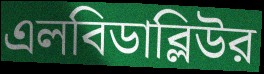
এলবিডাব্লিউর